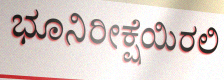
ಭೂನಿರೀಕ್ಷೆಯಿರಲಿ